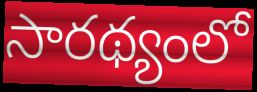
సారథ్యంలో